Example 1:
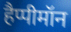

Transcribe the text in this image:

हैप्पीमॉन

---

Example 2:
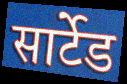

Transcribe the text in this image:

सार्टेड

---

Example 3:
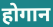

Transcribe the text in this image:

होगान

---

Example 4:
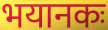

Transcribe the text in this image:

भयानकः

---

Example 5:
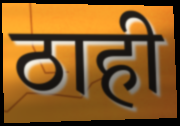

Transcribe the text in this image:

ठाही